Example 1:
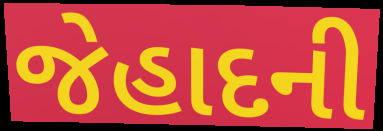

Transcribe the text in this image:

જેહાદની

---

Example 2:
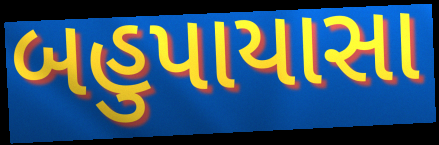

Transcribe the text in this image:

બહુપાયાસા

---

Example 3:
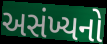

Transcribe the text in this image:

અસંખ્યનો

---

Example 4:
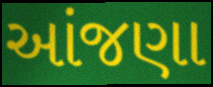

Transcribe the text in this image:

આંજણા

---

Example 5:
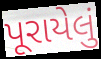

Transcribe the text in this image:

પૂરાયેલું